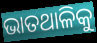
ଭାତଥାଳିକୁ